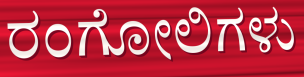
ರಂಗೋಲಿಗಳು